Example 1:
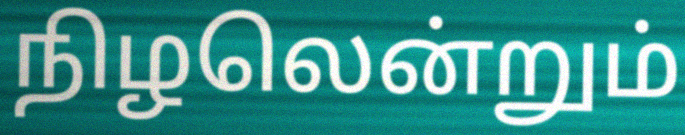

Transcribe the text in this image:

நிழலென்றும்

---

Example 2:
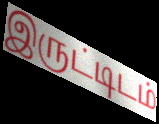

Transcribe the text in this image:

இருட்டிடம்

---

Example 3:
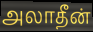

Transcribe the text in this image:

அலாதீன்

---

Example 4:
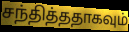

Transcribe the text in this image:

சந்தித்ததாகவும்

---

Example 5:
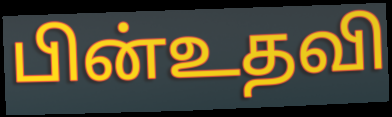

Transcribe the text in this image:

பின்உதவி